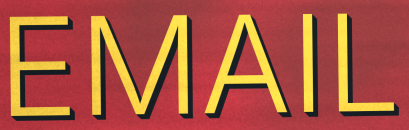
EMAIL